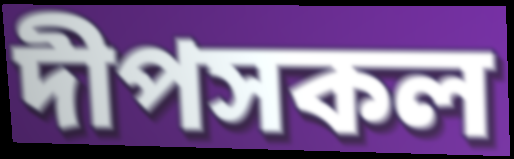
দীপসকল